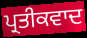
ਪ੍ਰਤੀਕਵਾਦ